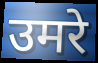
उमरे